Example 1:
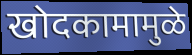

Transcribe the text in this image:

खोदकामामुळे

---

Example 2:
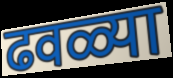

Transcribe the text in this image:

ढवळ्या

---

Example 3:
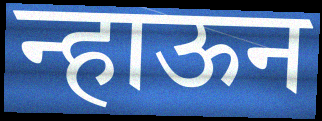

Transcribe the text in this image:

न्हाऊन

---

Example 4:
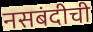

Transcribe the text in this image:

नसबंदीची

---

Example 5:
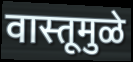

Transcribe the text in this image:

वास्तूमुळे